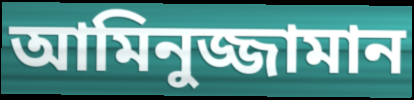
আমিনুজ্জামান